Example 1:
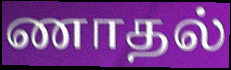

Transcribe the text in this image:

ணாதல்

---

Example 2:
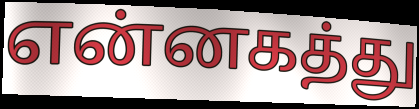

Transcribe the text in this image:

என்னகத்து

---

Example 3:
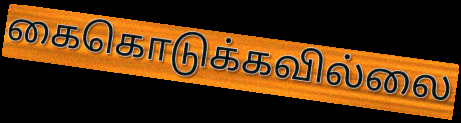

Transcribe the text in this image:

கைகொடுக்கவில்லை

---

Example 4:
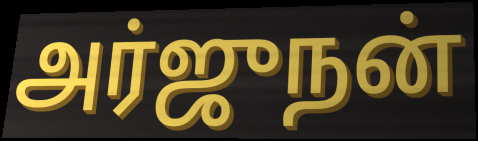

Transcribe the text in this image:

அர்ஜுநன்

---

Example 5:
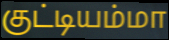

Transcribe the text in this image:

குட்டியம்மா